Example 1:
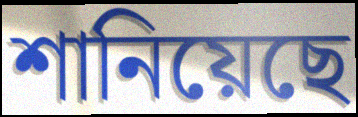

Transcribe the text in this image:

শানিয়েছে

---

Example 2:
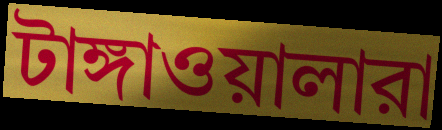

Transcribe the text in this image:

টাঙ্গাওয়ালারা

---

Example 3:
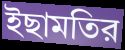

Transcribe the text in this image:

ইছামতির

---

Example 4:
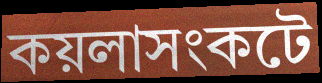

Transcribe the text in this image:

কয়লাসংকটে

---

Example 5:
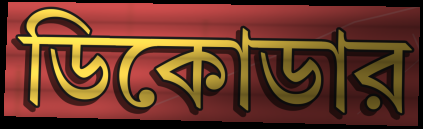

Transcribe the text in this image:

ডিকোডার